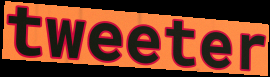
tweeter